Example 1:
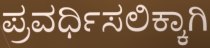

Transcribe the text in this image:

ಪ್ರವರ್ಧಿಸಲಿಕ್ಕಾಗಿ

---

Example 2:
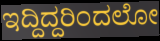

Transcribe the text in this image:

ಇದ್ದಿದ್ದರಿಂದಲೋ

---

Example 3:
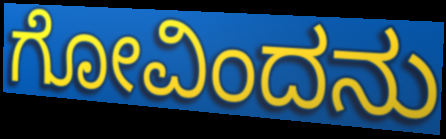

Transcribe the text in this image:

ಗೋವಿಂದನು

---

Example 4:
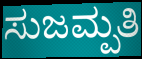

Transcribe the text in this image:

ಸುಜಮ್ಪತಿ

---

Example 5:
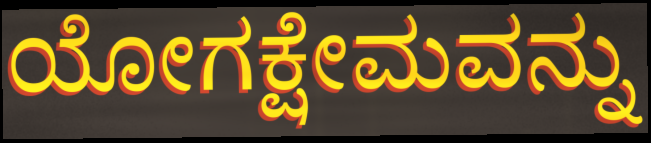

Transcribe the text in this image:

ಯೋಗಕ್ಷೇಮವನ್ನು